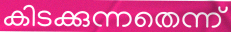
കിടക്കുന്നതെന്ന്